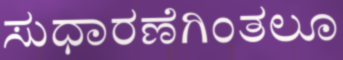
ಸುಧಾರಣೆಗಿಂತಲೂ